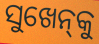
ସୁଖେନ୍‌କୁ